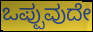
ಒಪ್ಪುವುದೇ